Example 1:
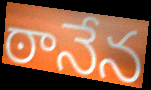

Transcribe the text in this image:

ఠానేన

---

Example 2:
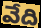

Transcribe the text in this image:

వేది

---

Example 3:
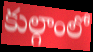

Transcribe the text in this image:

కుల్గాంలో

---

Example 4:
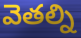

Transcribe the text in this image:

వెతల్ని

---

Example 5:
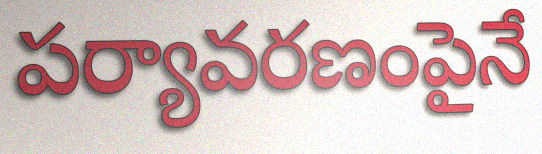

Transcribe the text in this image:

పర్యావరణంపైనే